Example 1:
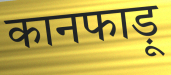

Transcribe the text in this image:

कानफाड़ू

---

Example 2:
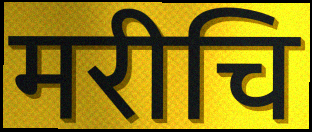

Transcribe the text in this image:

मरीचि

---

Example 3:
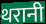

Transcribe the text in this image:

थरानी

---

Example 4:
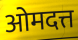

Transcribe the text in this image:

ओमदत्त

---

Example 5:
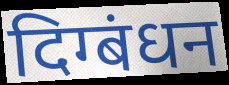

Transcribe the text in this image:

दिग्बंधन